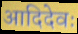
आदिदेवः